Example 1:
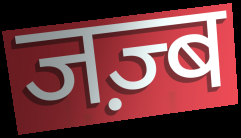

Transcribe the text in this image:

जज़्ब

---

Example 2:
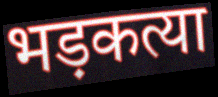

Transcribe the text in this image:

भड़कत्या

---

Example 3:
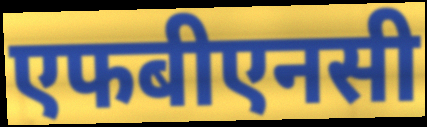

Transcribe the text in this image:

एफबीएनसी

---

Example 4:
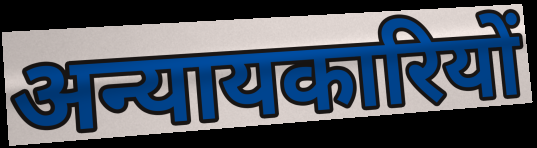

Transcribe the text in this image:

अन्यायकारियों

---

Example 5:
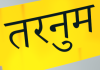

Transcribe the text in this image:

तरनुम